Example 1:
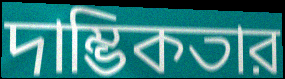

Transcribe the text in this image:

দাম্ভিকতার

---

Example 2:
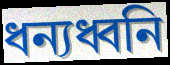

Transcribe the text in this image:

ধন্যধ্বনি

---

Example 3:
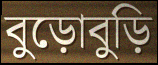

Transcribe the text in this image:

বুড়োবুড়ি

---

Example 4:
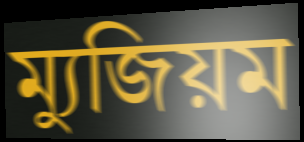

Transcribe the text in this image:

ম্যুজিয়ম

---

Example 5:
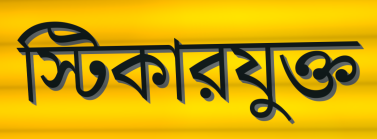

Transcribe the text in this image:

স্টিকারযুক্ত